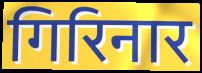
गिरिनार